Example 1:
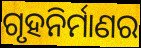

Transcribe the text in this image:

ଗୃହନିର୍ମାଣର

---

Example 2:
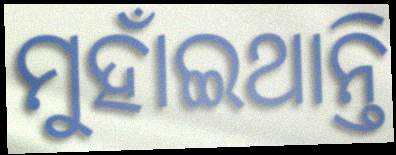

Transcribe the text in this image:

ମୁହାଁଇଥାନ୍ତି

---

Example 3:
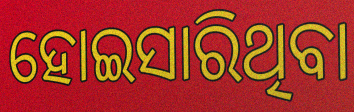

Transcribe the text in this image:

ହୋଇସାରିଥିବା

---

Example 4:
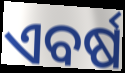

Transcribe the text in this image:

ଏବର୍ଷ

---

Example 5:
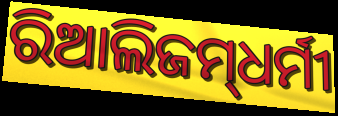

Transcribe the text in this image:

ରିଆଲିଜମ୍‌ଧର୍ମୀ